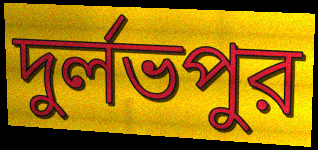
দুর্লভপুর